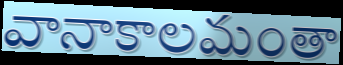
వానాకాలమంతా